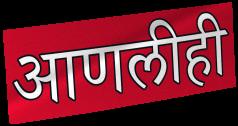
आणलीही